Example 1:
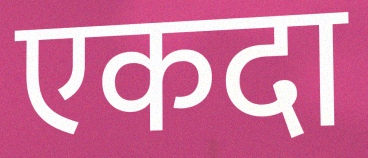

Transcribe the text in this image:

एकदा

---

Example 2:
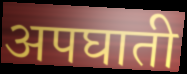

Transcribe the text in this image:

अपघाती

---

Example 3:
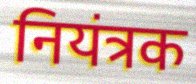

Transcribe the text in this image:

नियंत्रक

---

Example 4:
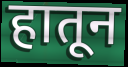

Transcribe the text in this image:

हातून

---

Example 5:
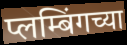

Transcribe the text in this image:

प्लम्बिंगच्या